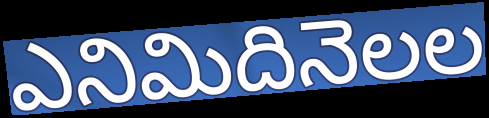
ఎనిమిదినెలల